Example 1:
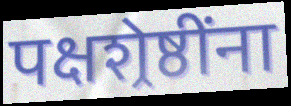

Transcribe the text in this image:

पक्षश्रेष्ठींना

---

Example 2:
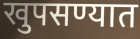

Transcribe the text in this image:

खुपसण्यात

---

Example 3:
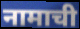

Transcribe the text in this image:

नामाची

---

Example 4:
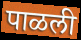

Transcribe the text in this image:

पाळली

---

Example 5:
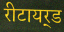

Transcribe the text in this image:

रीटायर्ड